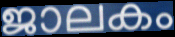
ജാലകം